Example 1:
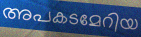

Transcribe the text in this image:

അപകടമേറിയ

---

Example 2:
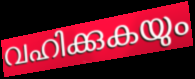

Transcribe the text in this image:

വഹിക്കുകയും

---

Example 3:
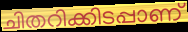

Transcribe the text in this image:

ചിതറിക്കിടപ്പാണ്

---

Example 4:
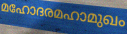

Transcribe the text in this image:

മഹോദരമഹാമുഖം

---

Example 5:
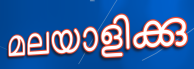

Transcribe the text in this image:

മലയാളിക്കു